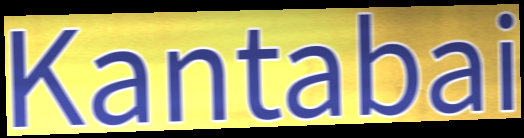
Kantabai